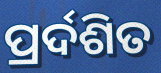
ପ୍ରର୍ଦଶିତ